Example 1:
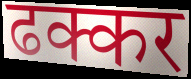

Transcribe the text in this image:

ढक्कर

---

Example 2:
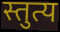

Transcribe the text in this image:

स्तुत्य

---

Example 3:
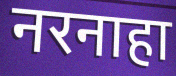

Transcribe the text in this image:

नरनाहा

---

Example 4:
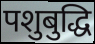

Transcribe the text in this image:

पशुबुद्धि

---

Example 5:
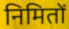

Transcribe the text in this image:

निमितों